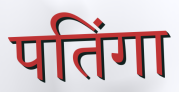
पतिंगा